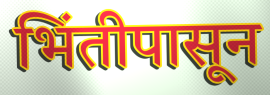
भिंतीपासून